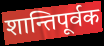
शान्तिपूर्वक